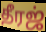
தீரஜ்